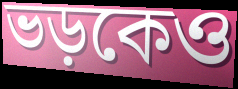
ভড়কেও